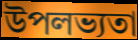
উপলভ্যতা